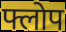
फ्लोप